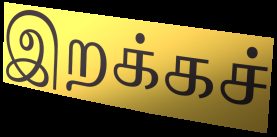
இறக்கச்